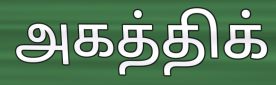
அகத்திக்